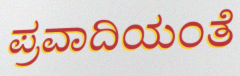
ಪ್ರವಾದಿಯಂತೆ